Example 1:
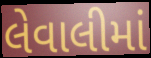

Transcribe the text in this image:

લેવાલીમાં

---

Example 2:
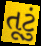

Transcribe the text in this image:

તૂટું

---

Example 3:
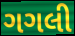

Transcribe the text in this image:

ગગલી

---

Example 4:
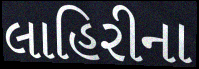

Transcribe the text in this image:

લાહિરીના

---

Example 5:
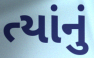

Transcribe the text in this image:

ત્યાંનું